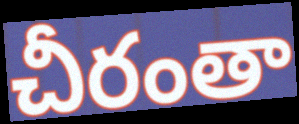
చీరంతా